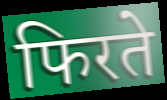
फिरते